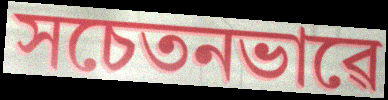
সচেতনভাৱে